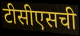
टीसीएसची